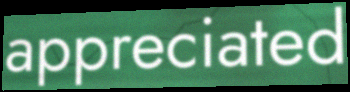
appreciated